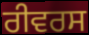
ਰੀਵਰਸ